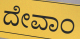
ದೇವಾಂ